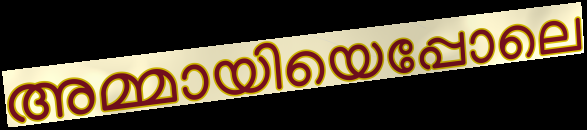
അമ്മായിയെപ്പോലെ